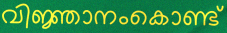
വിജ്ഞാനംകൊണ്ട്